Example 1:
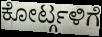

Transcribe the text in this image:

ಕೋರ್ಟ್ಗಳಿಗೆ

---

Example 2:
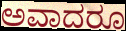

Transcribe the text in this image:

ಅವಾದರೂ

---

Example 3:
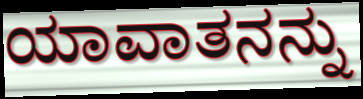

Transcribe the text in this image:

ಯಾವಾತನನ್ನು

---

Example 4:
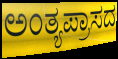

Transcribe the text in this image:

ಅಂತ್ಯಪ್ರಾಸದ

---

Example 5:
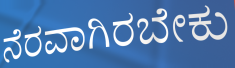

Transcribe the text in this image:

ನೆರವಾಗಿರಬೇಕು